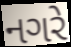
નગરે